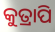
କୁତ୍ରାପି